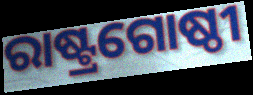
ରାଷ୍ଟ୍ରଗୋଷ୍ଠୀ